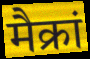
मैक्रां